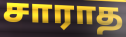
சாராத